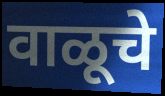
वाळूचे